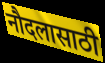
नौदलासाठी